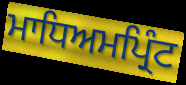
ਮਾਧਿਅਮਪ੍ਰਿੰਟ